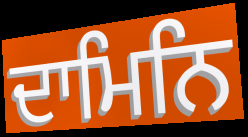
ਦਾਮਿਨਿ